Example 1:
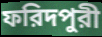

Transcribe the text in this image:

ফরিদপুরী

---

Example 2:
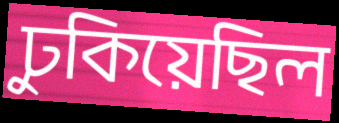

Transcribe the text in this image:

ঢুকিয়েছিল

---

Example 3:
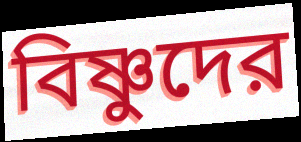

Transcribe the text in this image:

বিষ্ণুদের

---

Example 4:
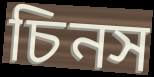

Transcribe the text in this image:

চিনস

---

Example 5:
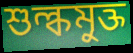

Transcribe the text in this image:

শুল্কমুক্ত